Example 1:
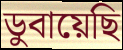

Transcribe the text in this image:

ডুবায়েছি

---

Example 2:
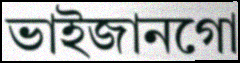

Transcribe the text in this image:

ভাইজানগো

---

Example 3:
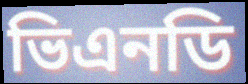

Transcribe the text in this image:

ভিএনডি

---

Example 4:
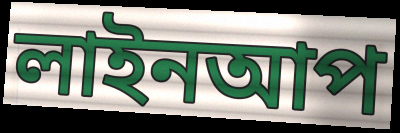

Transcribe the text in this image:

লাইনআপ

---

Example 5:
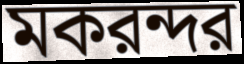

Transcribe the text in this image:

মকরন্দর